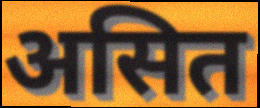
असित